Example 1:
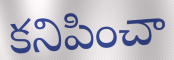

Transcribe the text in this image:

కనిపించా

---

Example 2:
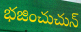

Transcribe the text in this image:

భజించుచున్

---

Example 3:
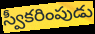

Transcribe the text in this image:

స్వీకరింపుడు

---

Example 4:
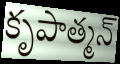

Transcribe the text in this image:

కృపాత్మన్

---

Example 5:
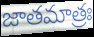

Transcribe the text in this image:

జాతమాత్రః